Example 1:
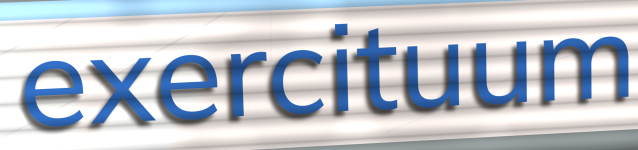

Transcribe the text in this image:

exercituum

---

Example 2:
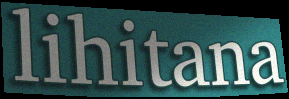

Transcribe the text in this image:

lihitana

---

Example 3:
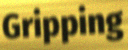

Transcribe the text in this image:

Gripping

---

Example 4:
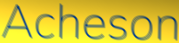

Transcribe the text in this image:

Acheson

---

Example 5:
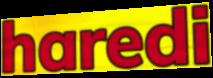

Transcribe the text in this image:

haredi